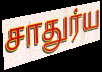
சாதுர்ய